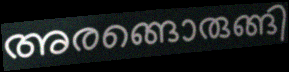
അരങ്ങൊരുങ്ങി